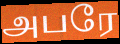
அபரே